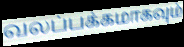
வலப்பக்கமாகவும்